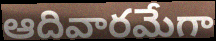
ఆదివారమేగా